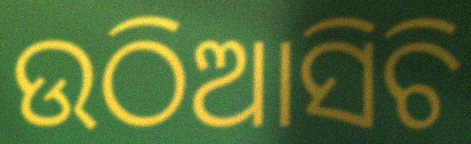
ଉଠିଆସିଚି